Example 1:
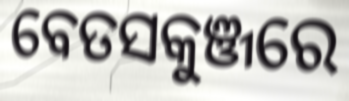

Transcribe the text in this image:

ବେତସକୁଞ୍ଜରେ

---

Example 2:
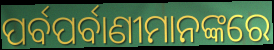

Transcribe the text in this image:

ପର୍ବପର୍ବାଣୀମାନଙ୍କରେ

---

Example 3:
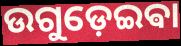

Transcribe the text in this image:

ଉଗୁଡ଼େଇଵା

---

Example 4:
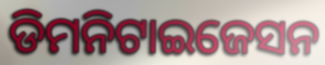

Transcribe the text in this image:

ଡିମନିଟାଇଜେସନ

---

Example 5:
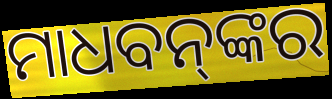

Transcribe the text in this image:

ମାଧବନ୍‌ଙ୍କର